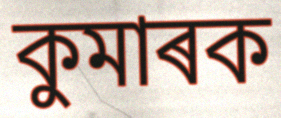
কুমাৰক